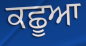
ਕਛੂਆ